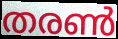
തരൺ